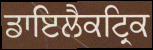
ਡਾਇਲੈਕਟ੍ਰਿਕ